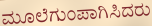
ಮೂಲೆಗುಂಪಾಗಿಸಿದರು